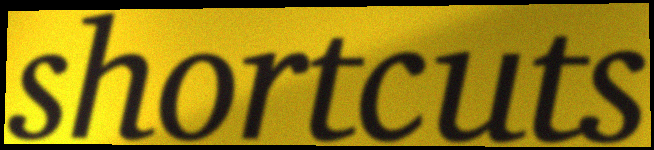
shortcuts